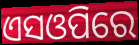
ଏସଓପିରେ